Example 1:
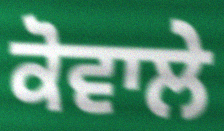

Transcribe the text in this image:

ਕੋਵਾਲੇ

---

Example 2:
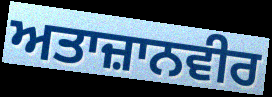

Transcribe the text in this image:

ਅਤਾਜ਼ਾਨਵੀਰ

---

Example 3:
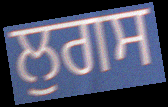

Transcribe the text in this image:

ਲੁਗਸ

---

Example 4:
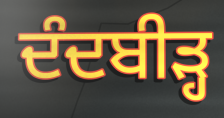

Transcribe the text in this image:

ਦੰਦਬੀੜ੍ਹ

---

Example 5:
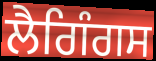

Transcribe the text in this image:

ਲੈਗਿੰਗਸ